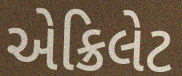
એક્રિલેટ